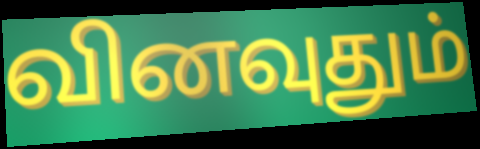
வினவுதும்